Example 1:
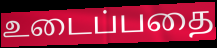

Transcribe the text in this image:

உடைப்பதை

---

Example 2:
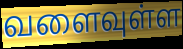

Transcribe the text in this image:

வளைவுள்ள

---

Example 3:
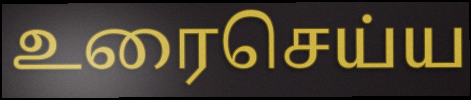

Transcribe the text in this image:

உரைசெய்ய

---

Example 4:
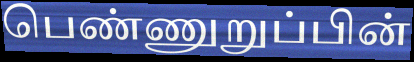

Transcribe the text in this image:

பெண்ணுறுப்பின்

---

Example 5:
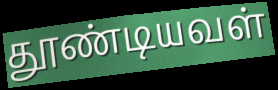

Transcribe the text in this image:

தூண்டியவள்